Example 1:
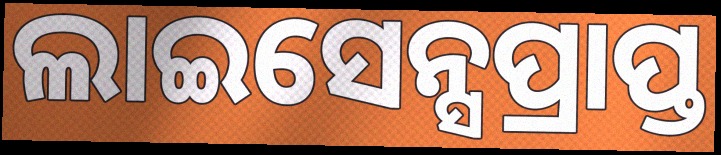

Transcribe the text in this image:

ଲାଇସେନ୍ସପ୍ରାପ୍ତ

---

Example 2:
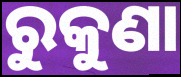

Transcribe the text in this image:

ରୁକୁଣା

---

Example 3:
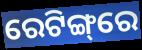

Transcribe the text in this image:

ରେଟିଙ୍ଗ୍‌ରେ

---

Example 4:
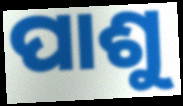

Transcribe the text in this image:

ପାଶୁ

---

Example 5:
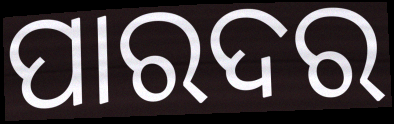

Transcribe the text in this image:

ପାରଦର